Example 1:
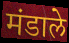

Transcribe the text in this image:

मंडाले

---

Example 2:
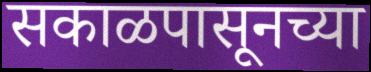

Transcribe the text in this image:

सकाळपासूनच्या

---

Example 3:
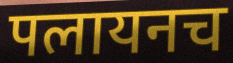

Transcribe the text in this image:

पलायनच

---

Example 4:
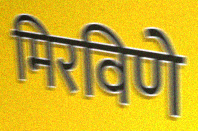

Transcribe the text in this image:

मिरविणे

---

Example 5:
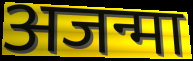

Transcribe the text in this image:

अजन्मा